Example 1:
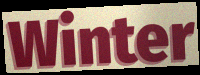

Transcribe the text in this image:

Winter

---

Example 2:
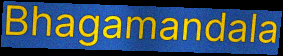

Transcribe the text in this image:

Bhagamandala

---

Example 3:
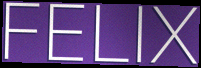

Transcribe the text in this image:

FELIX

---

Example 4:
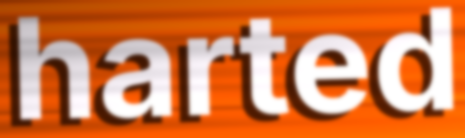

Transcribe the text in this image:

harted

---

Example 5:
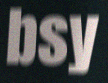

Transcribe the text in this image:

bsy